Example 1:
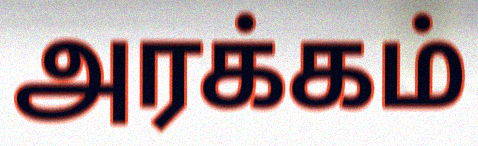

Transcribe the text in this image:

அரக்கம்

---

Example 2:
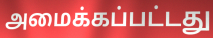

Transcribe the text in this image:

அமைக்கப்பட்டது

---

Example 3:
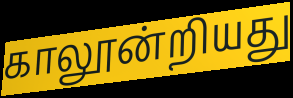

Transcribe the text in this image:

காலூன்றியது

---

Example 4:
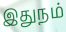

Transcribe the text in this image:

இதுநம்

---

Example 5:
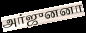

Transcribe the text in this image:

அர்ஜுனனா